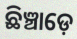
ଛିଞ୍ଚାଡ଼େ